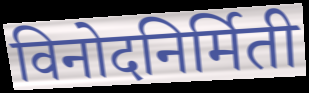
विनोदनिर्मिती